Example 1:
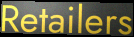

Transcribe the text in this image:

Retailers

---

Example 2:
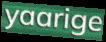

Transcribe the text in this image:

yaarige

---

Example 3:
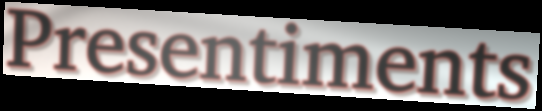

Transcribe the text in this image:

Presentiments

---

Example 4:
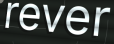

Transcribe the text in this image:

rever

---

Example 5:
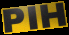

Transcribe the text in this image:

PIH